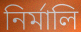
নির্মালি